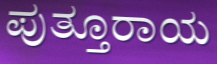
ಪುತ್ತೂರಾಯ